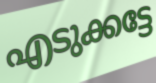
എടുക്കട്ടേ